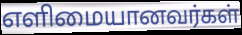
எளிமையானவர்கள்